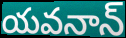
యవనాన్